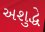
અશુદ્ધે